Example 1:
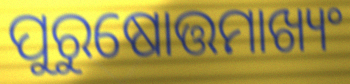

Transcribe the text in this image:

ପୁରୁଷୋତ୍ତମାଖ୍ୟଂ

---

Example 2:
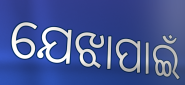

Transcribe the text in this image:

ଯେଝାପାଇଁ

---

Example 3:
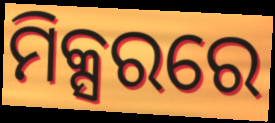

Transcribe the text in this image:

ମିକ୍ସରରେ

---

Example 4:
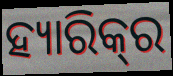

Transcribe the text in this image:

ହ୍ୟାରିକ୍‌ର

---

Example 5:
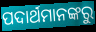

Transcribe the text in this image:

ପଦାର୍ଥମାନଙ୍କରୁ